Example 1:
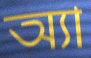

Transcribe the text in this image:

অ্যা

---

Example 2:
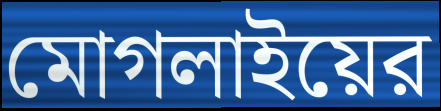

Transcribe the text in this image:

মোগলাইয়ের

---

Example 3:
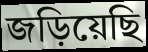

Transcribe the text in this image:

জড়িয়েছি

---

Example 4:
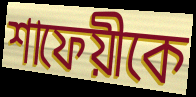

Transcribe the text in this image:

শাফেয়ীকে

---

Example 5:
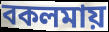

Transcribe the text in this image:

বকলমায়